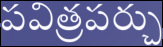
పవిత్రపర్చు